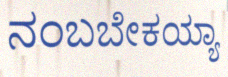
ನಂಬಬೇಕಯ್ಯಾ